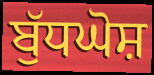
ਬੁੱਧਘੋਸ਼